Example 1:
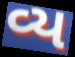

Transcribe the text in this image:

વ્ય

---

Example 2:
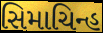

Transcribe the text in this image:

સિમાચિન્હ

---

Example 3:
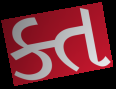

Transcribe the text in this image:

ક્ત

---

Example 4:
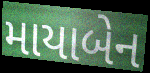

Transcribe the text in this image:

માયાબેન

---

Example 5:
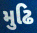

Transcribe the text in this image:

મુઢિ